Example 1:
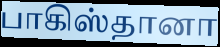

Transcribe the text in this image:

பாகிஸ்தானா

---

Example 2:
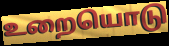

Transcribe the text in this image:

உறையொடு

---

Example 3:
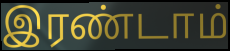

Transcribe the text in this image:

இரண்டாம்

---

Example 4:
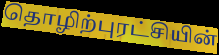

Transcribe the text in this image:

தொழிற்புரட்சியின்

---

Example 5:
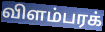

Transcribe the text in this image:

விளம்பரக்